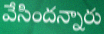
వేసిందన్నారు